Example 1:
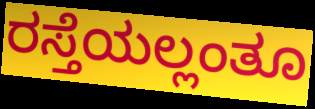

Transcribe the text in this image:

ರಸ್ತೆಯಲ್ಲಂತೂ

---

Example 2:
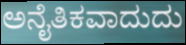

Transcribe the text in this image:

ಅನೈತಿಕವಾದುದು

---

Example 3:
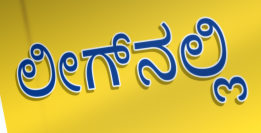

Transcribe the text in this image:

ಲೀಗ್‌ನಲ್ಲಿ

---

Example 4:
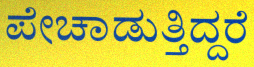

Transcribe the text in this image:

ಪೇಚಾಡುತ್ತಿದ್ದರೆ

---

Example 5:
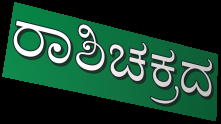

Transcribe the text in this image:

ರಾಶಿಚಕ್ರದ